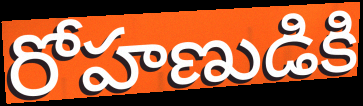
రోహణుడికి